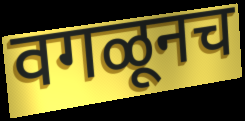
वगळूनच